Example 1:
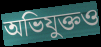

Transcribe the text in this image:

অভিযুক্তও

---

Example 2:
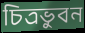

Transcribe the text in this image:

চিত্রভুবন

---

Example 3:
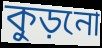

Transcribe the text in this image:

কুড়নো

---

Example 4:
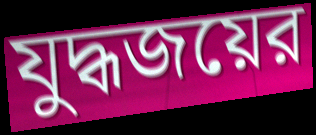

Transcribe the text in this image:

যুদ্ধজয়ের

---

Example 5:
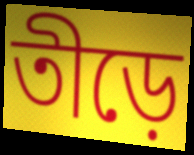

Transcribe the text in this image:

তীড়ে